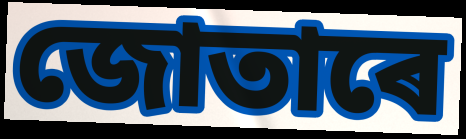
জোতাৰে